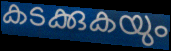
കടക്കുകയും